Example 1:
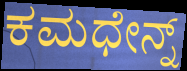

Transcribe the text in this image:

ಕಮಧೇನ್ನ್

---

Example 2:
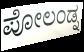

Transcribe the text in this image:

ಪೋಲಂಡ್ನ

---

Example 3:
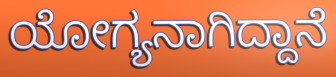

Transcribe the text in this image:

ಯೋಗ್ಯನಾಗಿದ್ದಾನೆ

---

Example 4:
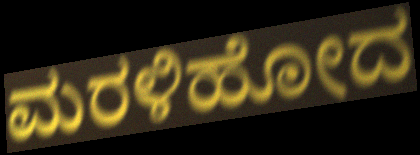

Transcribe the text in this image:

ಮರಳಿಹೋದ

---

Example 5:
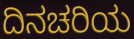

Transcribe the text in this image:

ದಿನಚರಿಯ